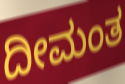
ದೀಮಂತ